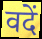
वदें